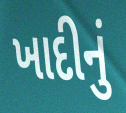
ખાદીનું